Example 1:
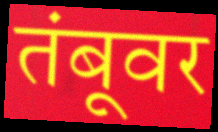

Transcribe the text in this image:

तंबूवर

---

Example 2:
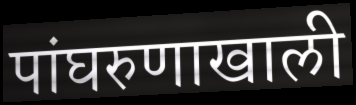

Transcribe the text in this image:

पांघरुणाखाली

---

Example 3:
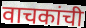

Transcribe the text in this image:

वाचकांची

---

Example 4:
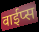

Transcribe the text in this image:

वाईप्स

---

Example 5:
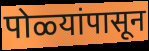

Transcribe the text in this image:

पोळ्यांपासून